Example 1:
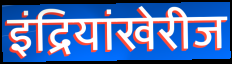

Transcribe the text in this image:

इंद्रियांखेरीज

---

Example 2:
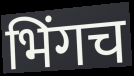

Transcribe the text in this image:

भिंगच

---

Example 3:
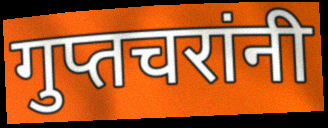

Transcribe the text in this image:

गुप्तचरांनी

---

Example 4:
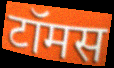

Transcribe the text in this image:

टॉमस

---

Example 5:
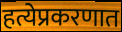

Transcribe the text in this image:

हत्येप्रकरणात